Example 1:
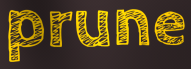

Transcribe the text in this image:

prune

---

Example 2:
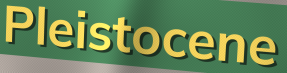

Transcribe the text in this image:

Pleistocene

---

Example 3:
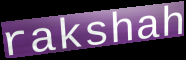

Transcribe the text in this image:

rakshah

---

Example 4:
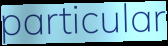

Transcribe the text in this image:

particular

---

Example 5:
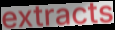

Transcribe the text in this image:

extracts